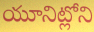
యూనిట్లోని